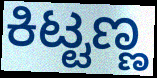
ಕಿಟ್ಟಣ್ಣ